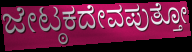
ಜೇಟ್ಠಕದೇವಪುತ್ತೋ